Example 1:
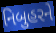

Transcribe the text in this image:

નિબુહરને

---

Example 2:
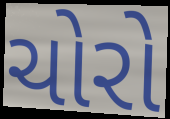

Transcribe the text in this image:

ચોરો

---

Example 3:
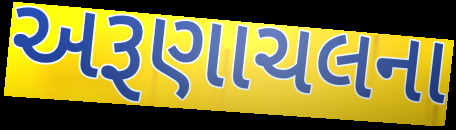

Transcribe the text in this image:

અરૂણાચલના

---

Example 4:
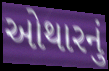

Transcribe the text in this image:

ઓથારનું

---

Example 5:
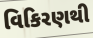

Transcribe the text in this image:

વિકિરણથી